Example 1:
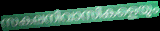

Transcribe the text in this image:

സകലനിവാസികളെയും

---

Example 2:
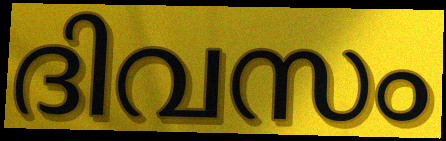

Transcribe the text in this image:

ദിവസം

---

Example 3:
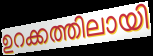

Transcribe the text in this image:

ഉറക്കത്തിലായി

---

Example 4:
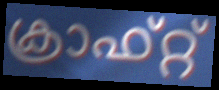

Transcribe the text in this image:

ക്രാഫ്റ്റ്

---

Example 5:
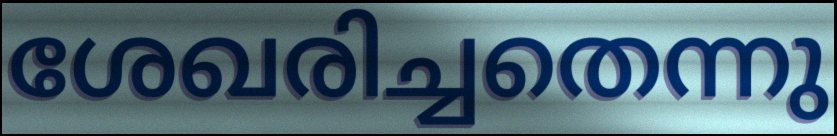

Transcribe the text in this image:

ശേഖരിച്ചതെന്നു